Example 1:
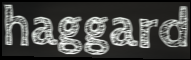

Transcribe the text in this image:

haggard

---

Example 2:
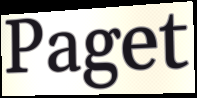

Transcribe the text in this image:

Paget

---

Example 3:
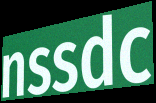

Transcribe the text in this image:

nssdc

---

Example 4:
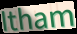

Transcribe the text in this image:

Itham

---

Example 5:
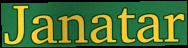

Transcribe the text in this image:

Janatar